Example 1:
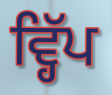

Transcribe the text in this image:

ਵ੍ਹਿੱਪ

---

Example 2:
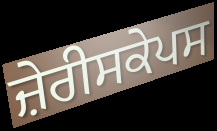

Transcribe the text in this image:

ਜ਼ੇਰੀਸਕੇਪਸ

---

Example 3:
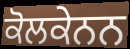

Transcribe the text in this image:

ਕੋਲਕੇਨਨ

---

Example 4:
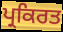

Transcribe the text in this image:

ਪ੍ਰਕਿਰਤ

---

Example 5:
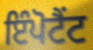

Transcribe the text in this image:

ਇੰਪੋਟੈਂਟ